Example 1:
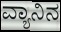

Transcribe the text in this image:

ವ್ಯಾನಿನ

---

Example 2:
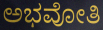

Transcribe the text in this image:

ಅಭವೋತಿ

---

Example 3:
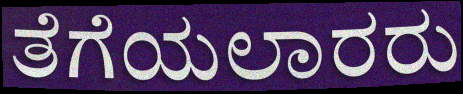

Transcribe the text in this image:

ತೆಗೆಯಲಾರರು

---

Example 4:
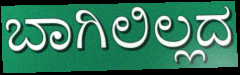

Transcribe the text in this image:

ಬಾಗಿಲಿಲ್ಲದ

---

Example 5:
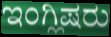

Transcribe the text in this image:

ಇಂಗ್ಲಿಷರು